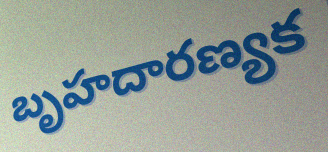
బృహదారణ్యక